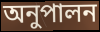
অনুপালন